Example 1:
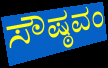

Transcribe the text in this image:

ಸೌಷ್ಠವಂ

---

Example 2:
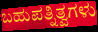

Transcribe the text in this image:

ಬಹುಪತ್ನಿತ್ವಗಳು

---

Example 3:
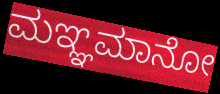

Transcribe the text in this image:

ಮಞ್ಞಮಾನೋ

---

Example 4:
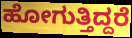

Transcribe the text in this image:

ಹೋಗುತ್ತಿದ್ದರೆ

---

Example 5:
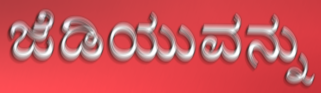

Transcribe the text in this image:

ಜೆಡಿಯುವನ್ನು